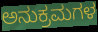
ಅನುಕ್ರಮಗಳ